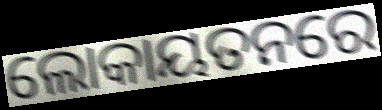
ଲୋକାୟତନରେ